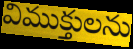
విముక్తులను